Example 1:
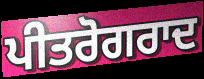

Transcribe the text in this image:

ਪੀਤਰੋਗਰਾਦ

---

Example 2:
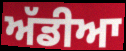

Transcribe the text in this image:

ਅੱਡੀਆ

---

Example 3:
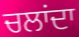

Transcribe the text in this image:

ਚਲਾਂਦਾ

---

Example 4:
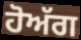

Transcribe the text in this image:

ਹੋਅੱਗ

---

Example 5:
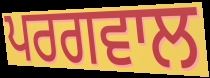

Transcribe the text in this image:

ਪਰਗਵਾਲ